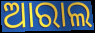
ଆରାଲ